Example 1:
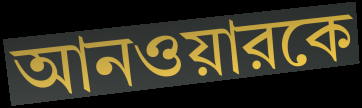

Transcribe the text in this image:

আনওয়ারকে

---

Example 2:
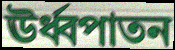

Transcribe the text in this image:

ঊর্ধ্বপাতন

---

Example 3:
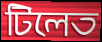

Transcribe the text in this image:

টিলেত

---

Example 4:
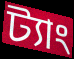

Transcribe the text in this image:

ট্যাং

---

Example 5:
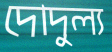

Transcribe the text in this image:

দোদুল্য